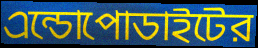
এন্ডোপোডাইটের